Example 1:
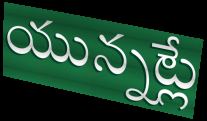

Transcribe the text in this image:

యున్నట్లే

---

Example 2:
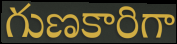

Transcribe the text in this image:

గుణకారిగా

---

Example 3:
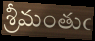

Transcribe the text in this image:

శ్రీమంతుఁ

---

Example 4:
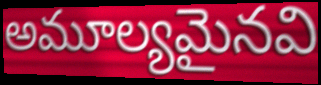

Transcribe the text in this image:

అమూల్యమైనవి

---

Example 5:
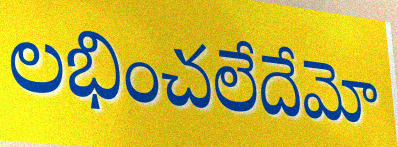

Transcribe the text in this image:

లభించలేదేమో